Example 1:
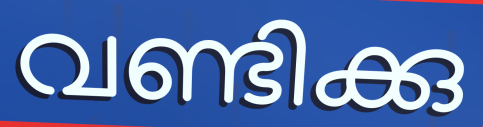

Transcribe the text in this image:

വണ്ടിക്കു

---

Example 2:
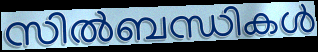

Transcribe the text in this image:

സിൽബന്ധികൾ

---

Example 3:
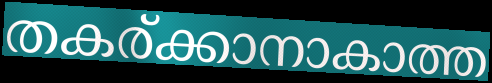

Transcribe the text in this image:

തകര്ക്കാനാകാത്ത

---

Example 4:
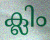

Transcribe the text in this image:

ക്ലിം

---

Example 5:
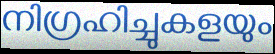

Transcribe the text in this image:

നിഗ്രഹിച്ചുകളയും